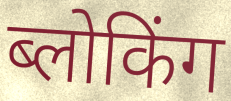
ब्लोकिंग